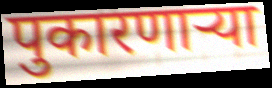
पुकारणार्‍या